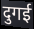
दुगई